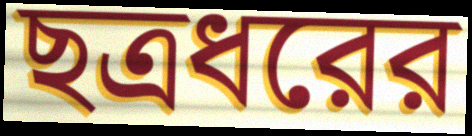
ছত্রধরের